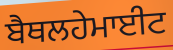
ਬੈਥਲਹੇਮਾਈਟ